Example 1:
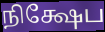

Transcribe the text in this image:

நிக்ஷேப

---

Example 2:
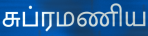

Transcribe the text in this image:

சுப்ரமணிய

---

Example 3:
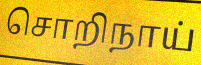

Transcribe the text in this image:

சொறிநாய்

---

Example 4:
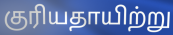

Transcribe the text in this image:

குரியதாயிற்று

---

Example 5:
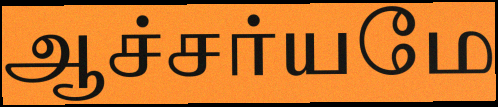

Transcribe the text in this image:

ஆச்சர்யமே